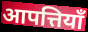
आपत्तियॉं